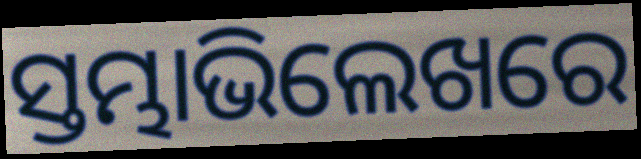
ସ୍ତମ୍ଭାଭିଲେଖରେ